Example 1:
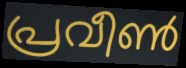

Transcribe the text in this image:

പ്രവീൺ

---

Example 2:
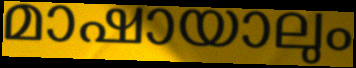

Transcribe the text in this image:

മാഷായാലും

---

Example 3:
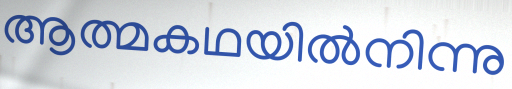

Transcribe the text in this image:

ആത്മകഥയിൽനിന്നു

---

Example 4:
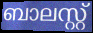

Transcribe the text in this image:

ബാലസ്റ്റ്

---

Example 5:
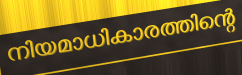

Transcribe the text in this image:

നിയമാധികാരത്തിന്റെ